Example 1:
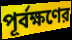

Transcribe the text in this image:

পূর্বক্ষণের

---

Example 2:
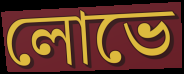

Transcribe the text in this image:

লোভে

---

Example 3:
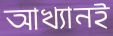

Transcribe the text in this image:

আখ্যানই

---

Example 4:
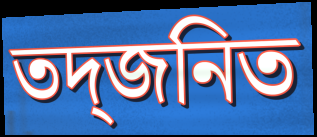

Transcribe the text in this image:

তদ্জনিত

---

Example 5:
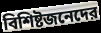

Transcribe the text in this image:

বিশিষ্টজনেদের